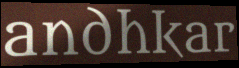
andhkar